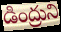
డింద్రుని